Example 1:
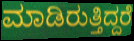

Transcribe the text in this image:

ಮಾಡಿರುತ್ತಿದ್ದರೆ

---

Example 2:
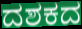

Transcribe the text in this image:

ದಶಕದ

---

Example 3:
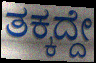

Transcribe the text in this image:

ತಕ್ಕದ್ದೇ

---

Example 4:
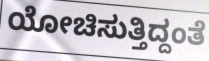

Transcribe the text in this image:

ಯೋಚಿಸುತ್ತಿದ್ದಂತೆ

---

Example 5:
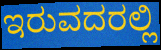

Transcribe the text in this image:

ಇರುವದರಲ್ಲಿ